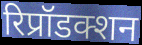
रिप्रॉडक्शन